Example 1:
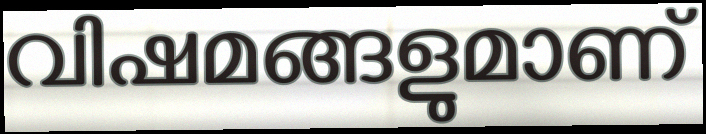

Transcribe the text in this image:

വിഷമങ്ങളുമാണ്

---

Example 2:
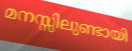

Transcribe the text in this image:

മനസ്സിലുണ്ടായി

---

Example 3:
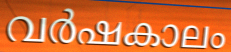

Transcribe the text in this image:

വർഷകാലം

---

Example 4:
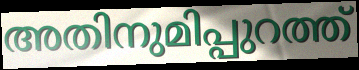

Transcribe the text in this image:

അതിനുമിപ്പുറത്ത്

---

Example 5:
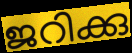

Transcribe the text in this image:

ജറിക്കു